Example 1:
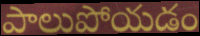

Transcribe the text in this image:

పాలుపోయడం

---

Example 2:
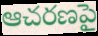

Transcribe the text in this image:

ఆచరణపై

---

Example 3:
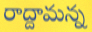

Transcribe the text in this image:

రాద్దామన్న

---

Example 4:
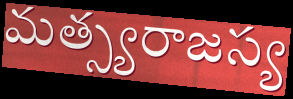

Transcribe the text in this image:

మత్స్యరాజస్య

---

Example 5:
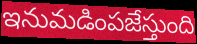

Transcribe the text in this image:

ఇనుమడింపజేస్తుంది